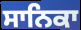
ਸਾਨਿਕਾ